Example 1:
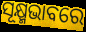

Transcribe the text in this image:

ସୂକ୍ଷ୍ମଭାବରେ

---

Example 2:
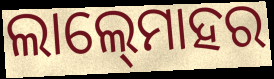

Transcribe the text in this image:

ଲାଲ୍‍ମୋହର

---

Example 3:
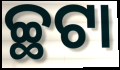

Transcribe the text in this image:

ଚ୍ଛଟା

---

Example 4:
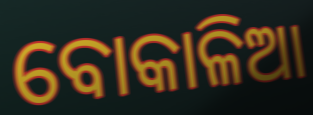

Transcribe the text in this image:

ବୋକାଳିଆ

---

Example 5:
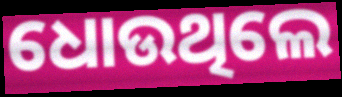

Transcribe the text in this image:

ଧୋଉଥିଲେ